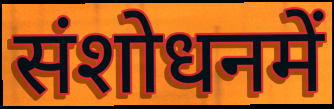
संशोधनमें